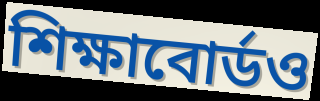
শিক্ষাবোর্ডও